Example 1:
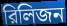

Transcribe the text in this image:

রিলিজন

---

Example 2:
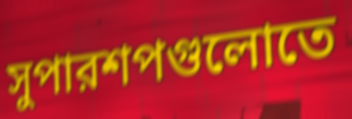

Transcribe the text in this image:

সুপারশপগুলোতে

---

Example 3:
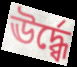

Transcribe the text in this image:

ঊর্দ্ধ্বে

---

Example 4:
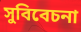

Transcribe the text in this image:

সুবিবেচনা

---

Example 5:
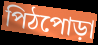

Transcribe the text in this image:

পিঠপোড়া